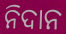
ନିଦାନ